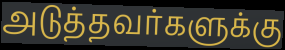
அடுத்தவர்களுக்கு